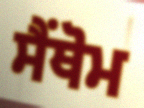
ਸੈਂਥੋਮ